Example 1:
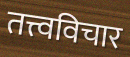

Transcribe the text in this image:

तत्त्वविचार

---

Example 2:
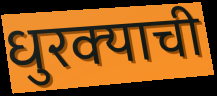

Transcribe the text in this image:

धुरक्याची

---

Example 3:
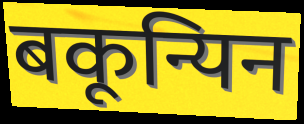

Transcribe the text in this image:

बकून्यिन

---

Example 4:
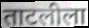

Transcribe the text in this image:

ताटलीला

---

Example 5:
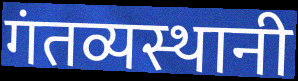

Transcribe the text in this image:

गंतव्यस्थानी